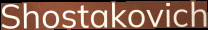
Shostakovich